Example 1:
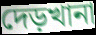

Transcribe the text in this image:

দেড়খানা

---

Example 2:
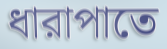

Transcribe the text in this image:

ধারাপাতে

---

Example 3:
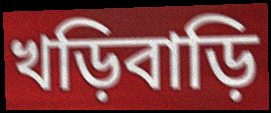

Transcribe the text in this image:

খড়িবাড়ি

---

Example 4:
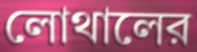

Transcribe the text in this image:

লোথালের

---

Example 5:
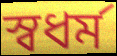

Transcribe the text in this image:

স্বধর্ম